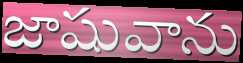
జాషువాను